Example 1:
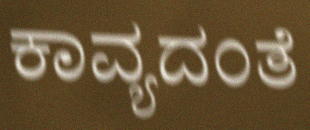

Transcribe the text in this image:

ಕಾವ್ಯದಂತೆ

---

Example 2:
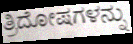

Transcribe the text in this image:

ತ್ರಿದೋಷಗಳನ್ನು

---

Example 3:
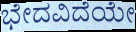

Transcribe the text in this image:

ಭೇದವಿದೆಯೇ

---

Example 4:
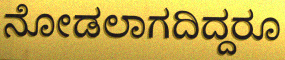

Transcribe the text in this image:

ನೋಡಲಾಗದಿದ್ದರೂ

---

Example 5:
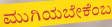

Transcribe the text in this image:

ಮುಗಿಯಬೇಕೆಂಬ